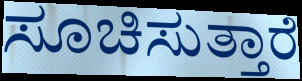
ಸೂಚಿಸುತ್ತಾರೆ